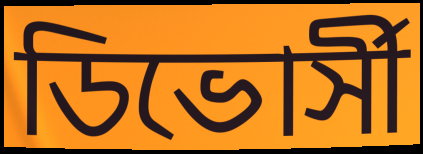
ডিভোর্সী